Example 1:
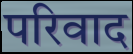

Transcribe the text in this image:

परिवाद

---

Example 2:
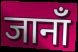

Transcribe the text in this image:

जानाँ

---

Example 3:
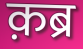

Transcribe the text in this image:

क़ब्र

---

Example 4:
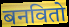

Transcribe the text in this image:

बनवितो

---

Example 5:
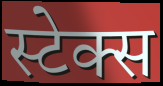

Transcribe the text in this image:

स्टेक्स